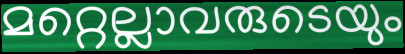
മറ്റെല്ലാവരുടെയും